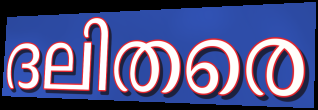
ദലിതരെ